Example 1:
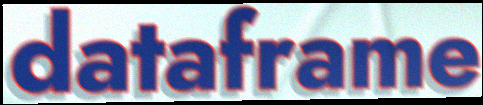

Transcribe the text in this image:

dataframe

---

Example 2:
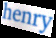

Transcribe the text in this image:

henry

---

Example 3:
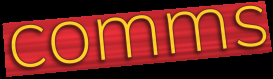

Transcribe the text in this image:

comms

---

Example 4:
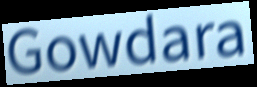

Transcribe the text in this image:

Gowdara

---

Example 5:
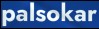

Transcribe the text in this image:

palsokar